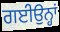
ਗਈਉਨ੍ਹਾਂ